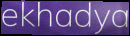
ekhadya